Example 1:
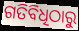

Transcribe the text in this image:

ଗତିବିଧିଠାରୁ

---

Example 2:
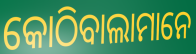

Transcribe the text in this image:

କୋଠିବାଲାମାନେ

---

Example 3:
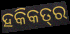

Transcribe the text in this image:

ହକିକତ୍‌ର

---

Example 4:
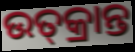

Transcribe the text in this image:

ଉତ୍‌କ୍ରାନ୍ତ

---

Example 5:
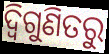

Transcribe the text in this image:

ଦ୍ୱିଗୁଣିତରୁ